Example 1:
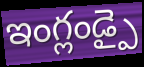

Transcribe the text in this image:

ఇంగ్లండ్పై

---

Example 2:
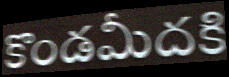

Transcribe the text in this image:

కొండమీదకి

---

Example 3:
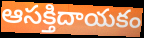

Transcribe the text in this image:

ఆసక్తిదాయకం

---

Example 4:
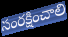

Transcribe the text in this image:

సంరక్షించాలి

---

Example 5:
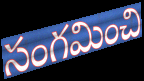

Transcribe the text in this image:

సంగమించి